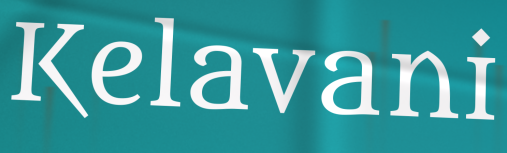
Kelavani